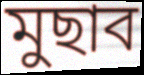
মুছাব